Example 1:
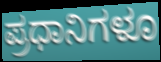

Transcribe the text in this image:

ಪ್ರಧಾನಿಗಳೂ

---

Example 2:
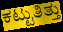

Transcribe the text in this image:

ಕಟ್ಟುತಿತ್ತು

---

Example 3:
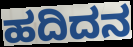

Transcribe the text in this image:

ಹದಿದನ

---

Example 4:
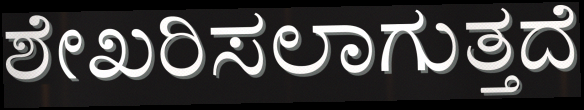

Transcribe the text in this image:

ಶೇಖರಿಸಲಾಗುತ್ತದೆ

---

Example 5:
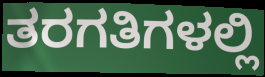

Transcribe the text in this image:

ತರಗತಿಗಳಲ್ಲಿ